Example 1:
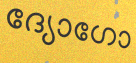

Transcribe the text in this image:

ദ്യോഗോ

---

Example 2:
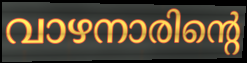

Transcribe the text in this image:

വാഴനാരിന്റെ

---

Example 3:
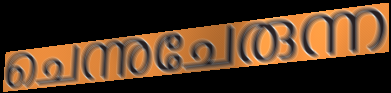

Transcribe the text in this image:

ചെന്നുചേരുന്ന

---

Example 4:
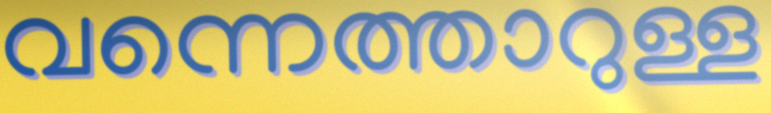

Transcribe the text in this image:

വന്നെത്താറുള്ള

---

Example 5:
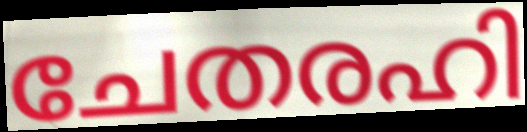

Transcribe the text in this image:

ചേതരഹി